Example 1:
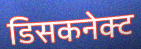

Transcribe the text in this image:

डिसकनेक्ट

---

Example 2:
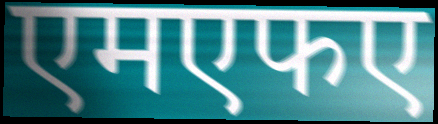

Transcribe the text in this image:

एमएफए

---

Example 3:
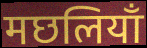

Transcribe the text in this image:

मछलियाँ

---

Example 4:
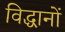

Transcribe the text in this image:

विद्धानों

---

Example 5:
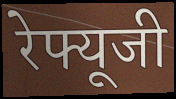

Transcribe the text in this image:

रेफ्यूजी